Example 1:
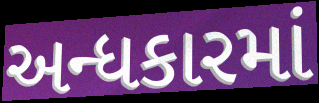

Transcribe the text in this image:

અન્ધકારમાં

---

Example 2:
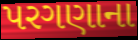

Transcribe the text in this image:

પરગણાના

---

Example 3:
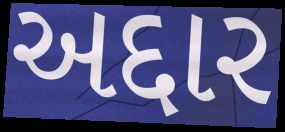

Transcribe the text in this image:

અદ્દાર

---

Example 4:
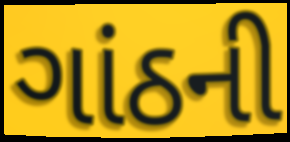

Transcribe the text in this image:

ગાંઠની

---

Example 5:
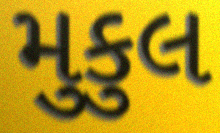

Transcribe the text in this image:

મુકુલ